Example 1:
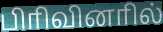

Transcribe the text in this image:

பிரிவினரில்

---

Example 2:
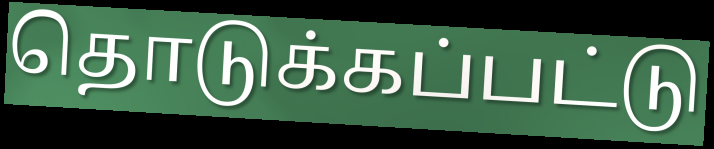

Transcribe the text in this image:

தொடுக்கப்பட்டு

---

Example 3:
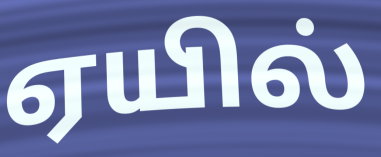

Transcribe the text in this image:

ஏயில்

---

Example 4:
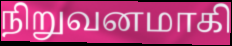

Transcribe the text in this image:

நிறுவனமாகி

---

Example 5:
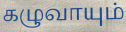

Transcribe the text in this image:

கழுவாயும்